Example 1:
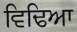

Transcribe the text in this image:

ਵਿਢਿਆ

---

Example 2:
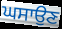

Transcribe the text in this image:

ਘਸਾਉਣ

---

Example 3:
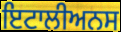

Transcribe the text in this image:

ਇਟਾਲੀਅਨਸ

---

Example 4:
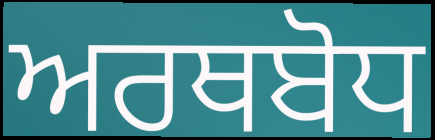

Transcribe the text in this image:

ਅਰਥਬੋਧ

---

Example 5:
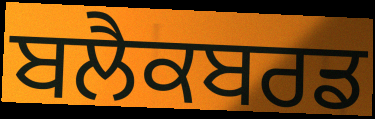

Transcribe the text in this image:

ਬਲੈਕਬਰਡ